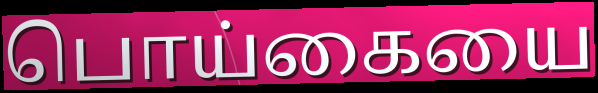
பொய்கையை